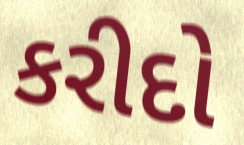
કરીદો